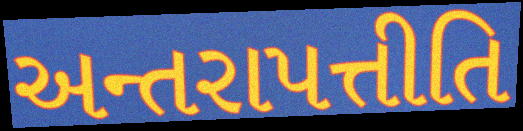
અન્તરાપત્તીતિ